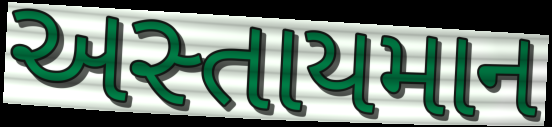
અસ્તાયમાન